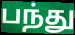
பந்து